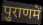
पुराणमें